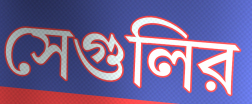
সেগুলির